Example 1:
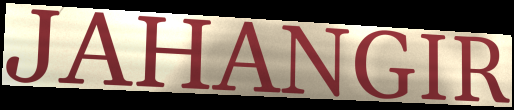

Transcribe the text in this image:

JAHANGIR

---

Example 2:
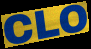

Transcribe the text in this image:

CLO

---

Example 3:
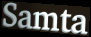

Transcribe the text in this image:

Samta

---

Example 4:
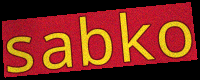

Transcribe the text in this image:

sabko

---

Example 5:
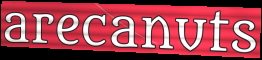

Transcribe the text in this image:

arecanuts